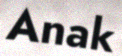
Anak